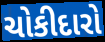
ચોકીદારો